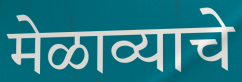
मेळाव्याचे